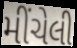
મીંચેલી